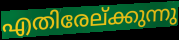
എതിരേല്ക്കുന്നു